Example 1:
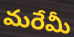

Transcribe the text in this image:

మరేమీ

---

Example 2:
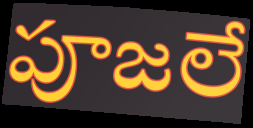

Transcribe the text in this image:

పూజలే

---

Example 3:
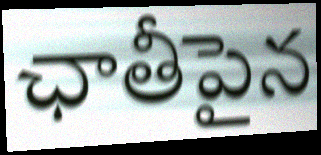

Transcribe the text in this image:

ఛాతీపైన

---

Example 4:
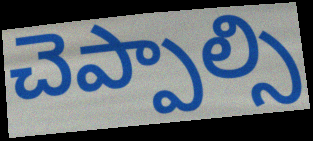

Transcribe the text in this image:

చెప్పాల్సి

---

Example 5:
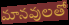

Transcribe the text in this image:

మానవులతో